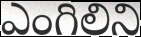
ఎంగిలిని